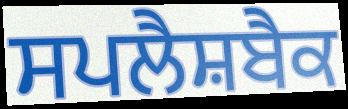
ਸਪਲੈਸ਼ਬੈਕ